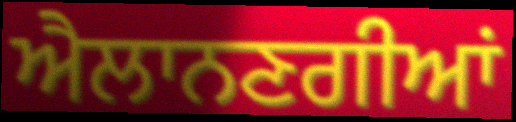
ਐਲਾਨਣਗੀਆਂ